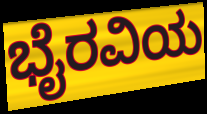
ಭೈರವಿಯ